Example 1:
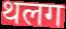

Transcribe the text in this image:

थलग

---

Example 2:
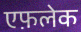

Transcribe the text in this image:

एफ़लेक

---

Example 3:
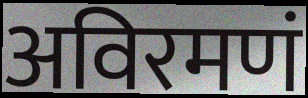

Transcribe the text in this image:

अविरमणं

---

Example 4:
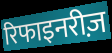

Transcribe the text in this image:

रिफाइनरीज़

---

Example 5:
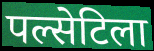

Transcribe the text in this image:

पल्सेटिला